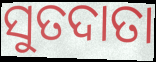
ସୁତଦାତା